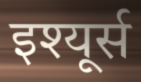
इश्यूर्स